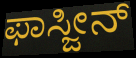
ಫಾಸ್ಜೀನ್